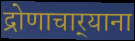
द्रोणाचार्याना